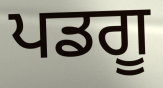
ਪਡਗੂ